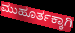
ಮುಹೂರ್ತಕ್ಕಾಗಿ